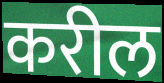
करील